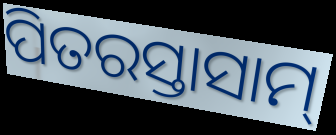
ପିତରସ୍ତାସାମ୍